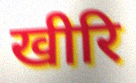
खीरि